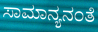
ಸಾಮಾನ್ಯನಂತೆ